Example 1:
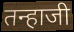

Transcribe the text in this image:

तन्हाजी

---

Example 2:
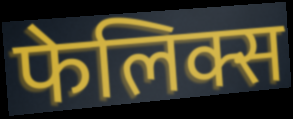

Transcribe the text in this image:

फेलिक्स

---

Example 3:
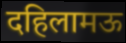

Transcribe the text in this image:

दहिलामऊ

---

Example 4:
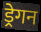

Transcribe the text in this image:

ड्रेगन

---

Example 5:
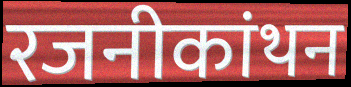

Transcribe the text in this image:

रजनीकांथन